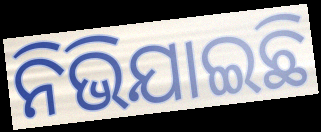
ନିଭିଯାଇଛି